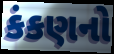
કંકણનો